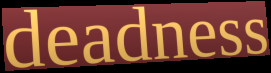
deadness